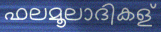
ഫലമൂലാദികള്